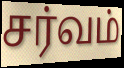
சர்வம்